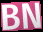
BN